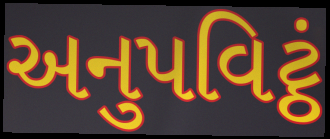
અનુપવિટ્ઠં